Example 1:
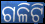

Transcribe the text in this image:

ଗଳିଟି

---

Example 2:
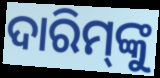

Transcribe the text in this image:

ଦାରିମ୍‍ଙ୍କୁ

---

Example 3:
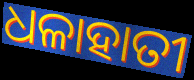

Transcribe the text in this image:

ଧଳାହାତୀ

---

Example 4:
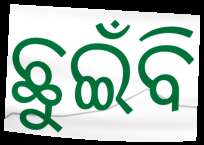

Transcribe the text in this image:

ଛୁଇଁବି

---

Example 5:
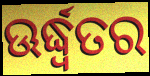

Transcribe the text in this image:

ଊର୍ଦ୍ଧ୍ଵତର